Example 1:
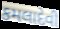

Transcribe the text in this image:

કમલાદેવી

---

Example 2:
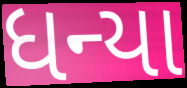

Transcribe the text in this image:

ધન્યા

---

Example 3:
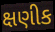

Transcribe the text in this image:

ક્ષણીક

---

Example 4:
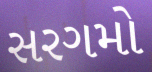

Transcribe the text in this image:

સરગમો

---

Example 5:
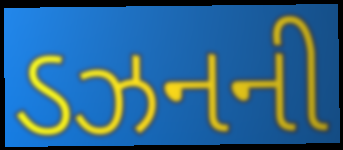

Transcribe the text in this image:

ડઝનની